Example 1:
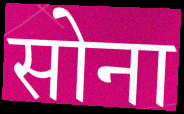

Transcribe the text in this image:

सोना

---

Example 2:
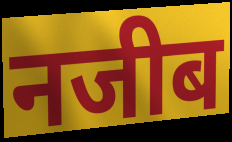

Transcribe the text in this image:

नजीब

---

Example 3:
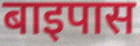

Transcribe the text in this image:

बाइपास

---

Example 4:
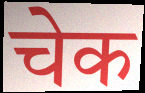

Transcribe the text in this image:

चेक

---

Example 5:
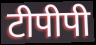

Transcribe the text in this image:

टीपीपी